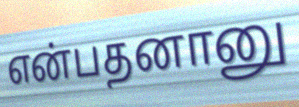
என்பதனானு